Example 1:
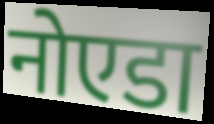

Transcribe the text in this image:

नोएडा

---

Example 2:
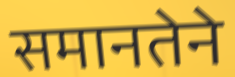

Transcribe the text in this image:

समानतेने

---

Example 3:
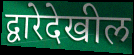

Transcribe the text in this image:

द्वारेदेखील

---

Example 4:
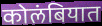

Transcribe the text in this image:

कोलंबियात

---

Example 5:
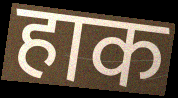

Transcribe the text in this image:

हाक